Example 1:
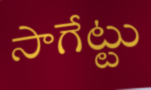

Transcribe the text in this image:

సాగేట్టు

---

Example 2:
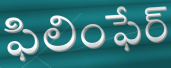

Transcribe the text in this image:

ఫిలింఫేర్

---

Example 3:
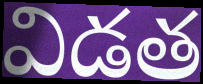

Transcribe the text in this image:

విడత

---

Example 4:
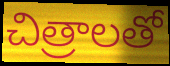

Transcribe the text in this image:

చిత్రాలతో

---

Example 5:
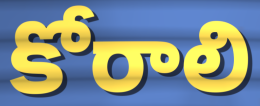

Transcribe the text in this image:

కోరాలి